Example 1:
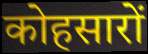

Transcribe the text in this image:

कोहसारों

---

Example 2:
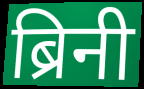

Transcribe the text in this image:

ब्रिनी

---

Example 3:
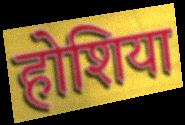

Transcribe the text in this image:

होशिया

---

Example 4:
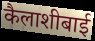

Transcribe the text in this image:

कैलाशीबाई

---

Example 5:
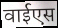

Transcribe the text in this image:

वाईएस